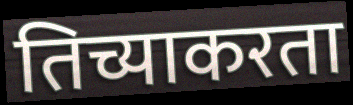
तिच्याकरता